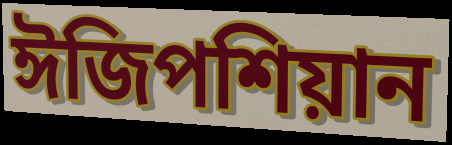
ঈজিপশিয়ান